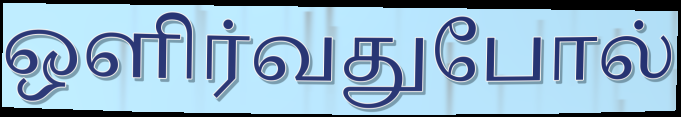
ஒளிர்வதுபோல்